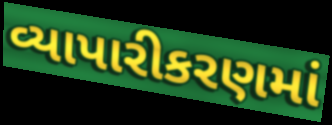
વ્યાપારીકરણમાં